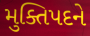
મુક્તિપદને